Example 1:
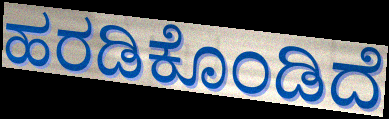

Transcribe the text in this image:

ಹರಡಿಕೊಂಡಿದೆ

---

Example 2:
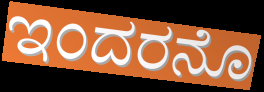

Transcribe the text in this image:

ಇಂದರನೊ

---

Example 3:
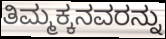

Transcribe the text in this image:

ತಿಮ್ಮಕ್ಕನವರನ್ನು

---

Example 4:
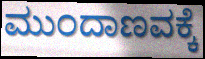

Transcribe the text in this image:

ಮುಂದಾಣವಕ್ಕೆ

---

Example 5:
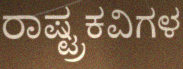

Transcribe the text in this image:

ರಾಷ್ಟ್ರಕವಿಗಳ